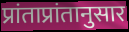
प्रांताप्रांतानुसार